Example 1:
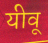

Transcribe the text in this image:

यीवू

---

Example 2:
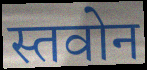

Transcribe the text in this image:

स्तवोन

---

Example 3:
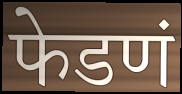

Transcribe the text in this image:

फेडणं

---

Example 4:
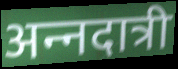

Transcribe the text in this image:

अन्नदात्री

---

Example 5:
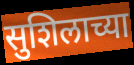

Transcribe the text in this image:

सुशिलाच्या